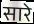
सारे